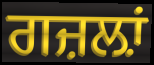
ਗਜ਼ਲ਼ਾਂ